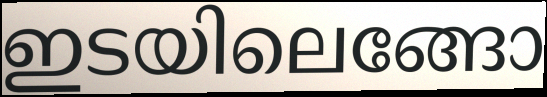
ഇടയിലെങ്ങോ